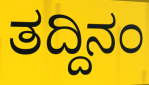
ತದ್ದಿನಂ